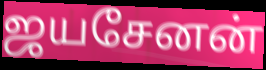
ஜயசேனன்